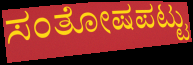
ಸಂತೋಷಪಟ್ಟು